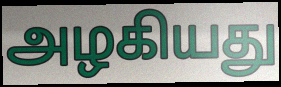
அழகியது